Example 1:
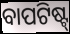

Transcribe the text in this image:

ବାପଟିଷ୍ଟ୍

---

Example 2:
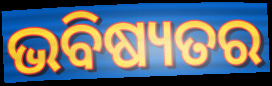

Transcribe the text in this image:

ଭବିଷ୍ୟତର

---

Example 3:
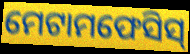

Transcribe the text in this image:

ମେଟାମଫେସିସ୍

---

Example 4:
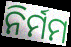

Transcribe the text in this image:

ନିର୍ମମ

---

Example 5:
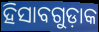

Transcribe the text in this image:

ହିସାବଗୁଡ଼ାକ